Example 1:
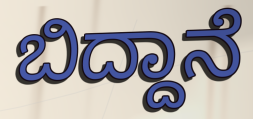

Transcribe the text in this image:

ಬಿದ್ದಾನೆ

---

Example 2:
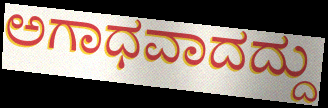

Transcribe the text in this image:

ಅಗಾಧವಾದದ್ದು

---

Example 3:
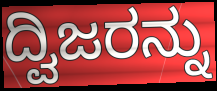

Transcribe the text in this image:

ದ್ವಿಜರನ್ನು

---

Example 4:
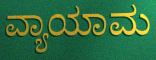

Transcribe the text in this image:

ವ್ಯಾಯಾಮ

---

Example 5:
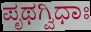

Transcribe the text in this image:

ಪೃಥಗ್ವಿಧಾಃ